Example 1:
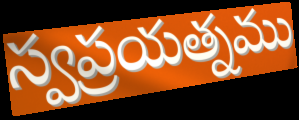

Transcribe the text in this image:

స్వప్రయత్నము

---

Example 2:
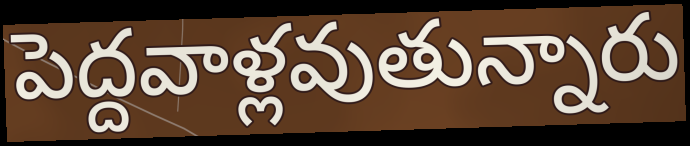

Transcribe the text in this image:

పెద్దవాళ్లవుతున్నారు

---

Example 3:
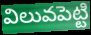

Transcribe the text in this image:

విలువపెట్టి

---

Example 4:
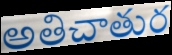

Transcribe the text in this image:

అతిచాతుర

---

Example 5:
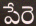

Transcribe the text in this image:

పేరె